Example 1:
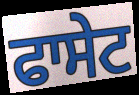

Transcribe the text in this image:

ਫਾਸੇਟ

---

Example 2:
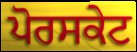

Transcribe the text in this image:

ਪੋਰਸਕੇਟ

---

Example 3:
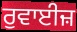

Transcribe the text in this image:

ਰੁਵਾਈਜ਼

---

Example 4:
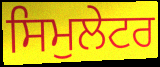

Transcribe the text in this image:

ਸਿਮੁਲੇਟਰ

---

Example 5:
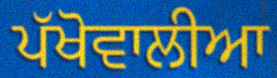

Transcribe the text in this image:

ਪੱਖੋਵਾਲੀਆ